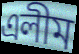
এলীম